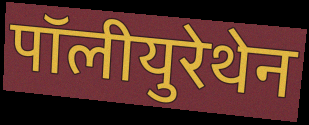
पॉलीयुरेथेन